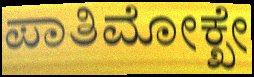
ಪಾತಿಮೋಕ್ಖೇ